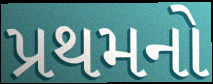
પ્રથમનો